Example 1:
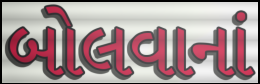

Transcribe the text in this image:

બોલવાનાં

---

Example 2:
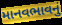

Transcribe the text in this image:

માનવભાવનું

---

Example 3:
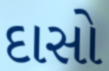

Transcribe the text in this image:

દાસો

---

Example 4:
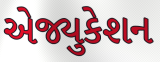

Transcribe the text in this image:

એજ્યુકેશન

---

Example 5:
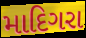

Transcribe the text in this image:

માદિગરા